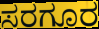
ಸರಗೂರ